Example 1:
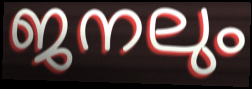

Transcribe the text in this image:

ജനലും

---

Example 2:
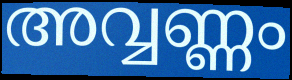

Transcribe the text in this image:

അവ്വണ്ണം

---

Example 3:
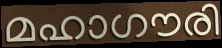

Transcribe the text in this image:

മഹാഗൗരി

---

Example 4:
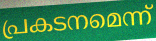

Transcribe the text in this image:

പ്രകടനമെന്ന്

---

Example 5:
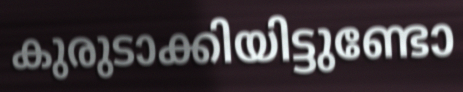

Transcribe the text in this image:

കുരുടാക്കിയിട്ടുണ്ടോ